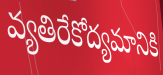
వ్యతిరేకోద్యమానికి